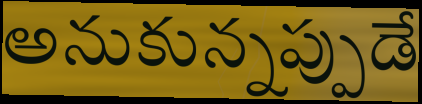
అనుకున్నప్పుడే